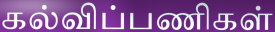
கல்விப்பணிகள்